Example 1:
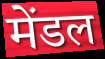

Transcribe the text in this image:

मेंडल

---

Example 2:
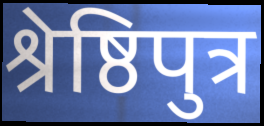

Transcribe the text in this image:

श्रेष्ठिपुत्र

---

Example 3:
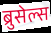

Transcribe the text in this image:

ब्रुसेल्स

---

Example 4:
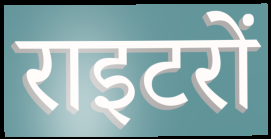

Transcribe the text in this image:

राइटरों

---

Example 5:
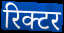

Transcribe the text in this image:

रिक्टर